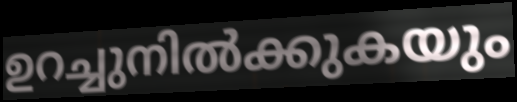
ഉറച്ചുനിൽക്കുകയും